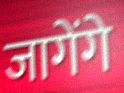
जागेंगे